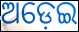
ଅଡ଼େଇ